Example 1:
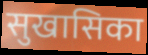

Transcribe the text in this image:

सुखासिका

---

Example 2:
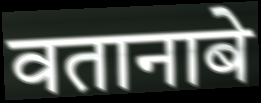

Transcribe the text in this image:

वतानाबे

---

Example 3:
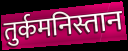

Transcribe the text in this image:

तुर्कमनिस्तान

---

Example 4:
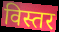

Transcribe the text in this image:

विस्तर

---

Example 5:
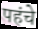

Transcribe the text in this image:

पहंचे